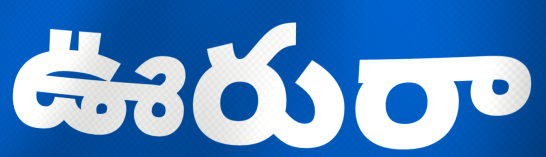
ఊరురా